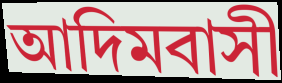
আদিমবাসী